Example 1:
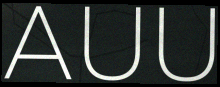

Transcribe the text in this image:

AUU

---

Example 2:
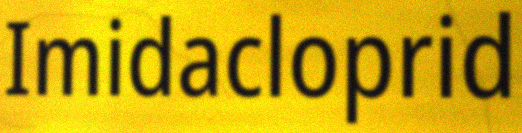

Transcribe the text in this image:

Imidacloprid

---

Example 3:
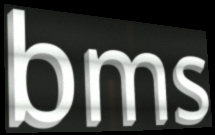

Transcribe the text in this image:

bms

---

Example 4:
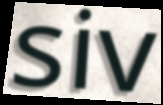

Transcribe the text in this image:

siv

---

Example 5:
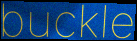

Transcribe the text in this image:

buckle